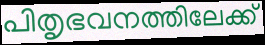
പിതൃഭവനത്തിലേക്ക്